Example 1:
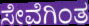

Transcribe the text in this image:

ಸೇವೆಗಿಂತ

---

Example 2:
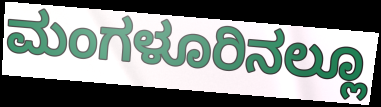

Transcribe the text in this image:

ಮಂಗಳೂರಿನಲ್ಲೂ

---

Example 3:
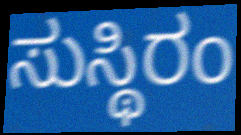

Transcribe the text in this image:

ಸುಸ್ಥಿರಂ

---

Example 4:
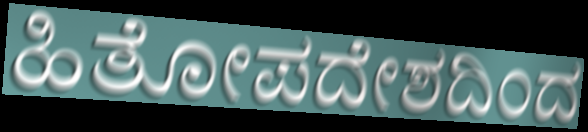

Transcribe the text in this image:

ಹಿತೋಪದೇಶದಿಂದ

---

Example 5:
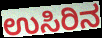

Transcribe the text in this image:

ಉಸಿರಿನ